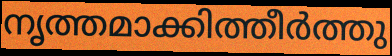
നൃത്തമാക്കിത്തീർത്തു